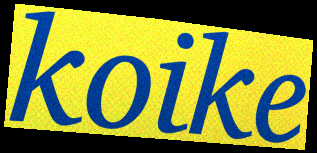
koike